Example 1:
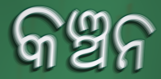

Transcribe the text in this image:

କଞ୍ଚନ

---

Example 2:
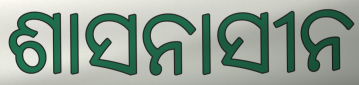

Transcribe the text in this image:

ଶାସନାସୀନ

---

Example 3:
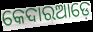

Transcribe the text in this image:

କେଦାରଆଡ଼େ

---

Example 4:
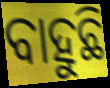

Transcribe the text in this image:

ବାହୁଛି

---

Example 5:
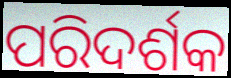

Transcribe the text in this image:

ପରିଦର୍ଶକ